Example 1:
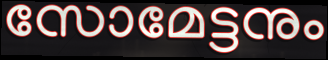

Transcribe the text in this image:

സോമേട്ടനും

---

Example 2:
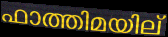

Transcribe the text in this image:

ഫാത്തിമയില്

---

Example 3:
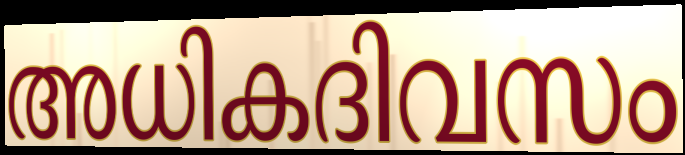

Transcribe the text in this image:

അധികദിവസം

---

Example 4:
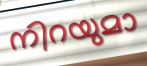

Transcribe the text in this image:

നിറയുമാ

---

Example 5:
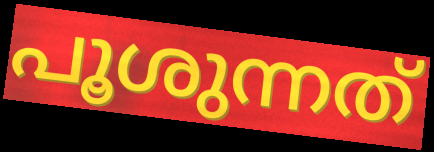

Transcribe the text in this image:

പൂശുന്നത്